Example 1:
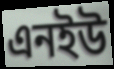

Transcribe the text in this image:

এনইউ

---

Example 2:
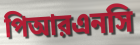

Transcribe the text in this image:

পিআরএনসি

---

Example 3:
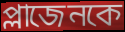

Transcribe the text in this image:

প্লাজেনকে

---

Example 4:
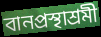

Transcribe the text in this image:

বানপ্রস্থাশ্রমী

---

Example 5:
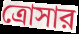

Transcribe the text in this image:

ত্রোসার